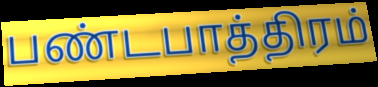
பண்டபாத்திரம்